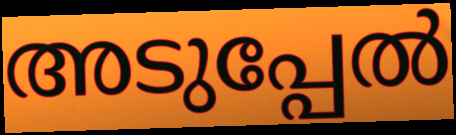
അടുപ്പേൽ